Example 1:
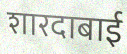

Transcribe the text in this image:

शारदाबाई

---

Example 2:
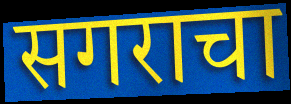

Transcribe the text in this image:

सगराचा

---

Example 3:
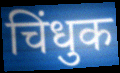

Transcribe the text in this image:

चिंधुक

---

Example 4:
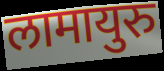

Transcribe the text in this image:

लामायुरु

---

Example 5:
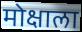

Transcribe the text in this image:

मोक्षाला